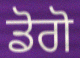
ਡੋਗੋ